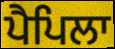
ਪੈਪਿਲਾ